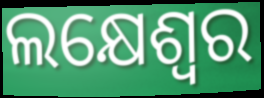
ଲକ୍ଷେଶ୍ଵର